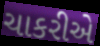
ચાકરીએ